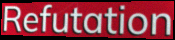
Refutation